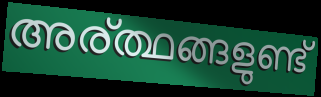
അര്ത്ഥങ്ങളുണ്ട്